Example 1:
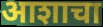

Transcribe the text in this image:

आशाचा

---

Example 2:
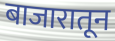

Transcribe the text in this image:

बाजारातून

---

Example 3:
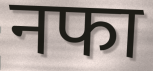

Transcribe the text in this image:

नफा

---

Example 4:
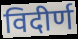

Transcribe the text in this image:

विदीर्ण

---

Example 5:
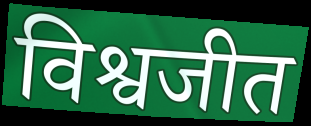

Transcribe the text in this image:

विश्वजीत